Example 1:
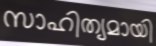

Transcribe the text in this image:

സാഹിത്യമായി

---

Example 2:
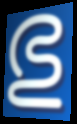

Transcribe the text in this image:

ഭു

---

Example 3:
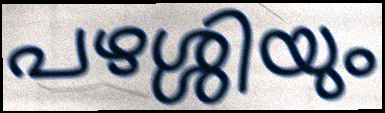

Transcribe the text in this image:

പഴശ്ശിയും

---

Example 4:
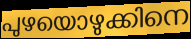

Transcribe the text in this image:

പുഴയൊഴുക്കിനെ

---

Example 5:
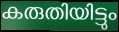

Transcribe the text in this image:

കരുതിയിട്ടും